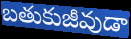
బతుకుజీవుడా